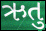
ઋતુ